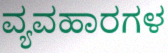
ವ್ಯವಹಾರಗಳ